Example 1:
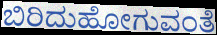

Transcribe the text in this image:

ಬಿರಿದುಹೋಗುವಂತೆ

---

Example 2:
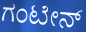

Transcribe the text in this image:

ಗಂಟೇನ್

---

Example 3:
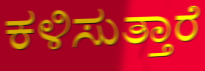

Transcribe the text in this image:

ಕಳಿಸುತ್ತಾರೆ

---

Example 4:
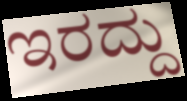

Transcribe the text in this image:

ಇರದ್ದು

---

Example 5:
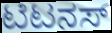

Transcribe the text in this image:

ಟೆಟನಸ್